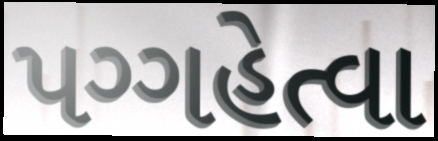
પગ્ગહેત્વા